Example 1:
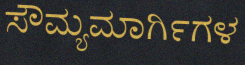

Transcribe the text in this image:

ಸೌಮ್ಯಮಾರ್ಗಿಗಳ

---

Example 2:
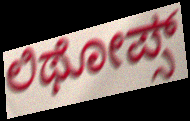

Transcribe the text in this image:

ಲಿಥೋಪ್ಸ್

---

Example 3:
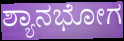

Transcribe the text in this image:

ಶ್ಯಾನಭೋಗ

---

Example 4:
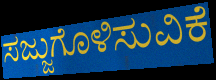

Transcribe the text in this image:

ಸಜ್ಜುಗೊಳಿಸುವಿಕೆ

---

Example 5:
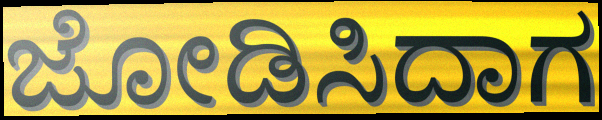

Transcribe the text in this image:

ಜೋಡಿಸಿದಾಗ